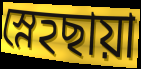
স্নেহছায়া